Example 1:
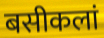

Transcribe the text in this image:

बसीकलां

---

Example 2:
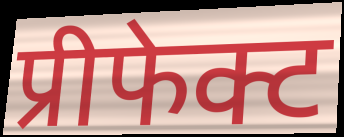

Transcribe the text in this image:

प्रीफेक्ट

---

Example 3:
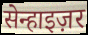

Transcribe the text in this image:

सेन्हाइज़र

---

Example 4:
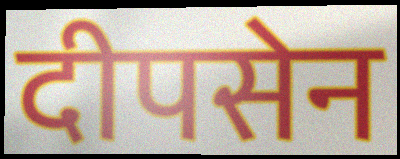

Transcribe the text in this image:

दीपसेन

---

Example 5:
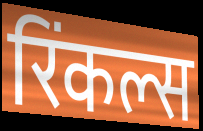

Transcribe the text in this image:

रिंकल्स